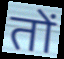
तों